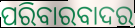
ପରିବାରବାଦର